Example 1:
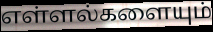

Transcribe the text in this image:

எள்ளல்களையும்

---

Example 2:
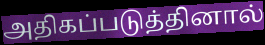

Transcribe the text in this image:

அதிகப்படுத்தினால்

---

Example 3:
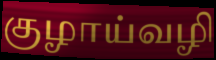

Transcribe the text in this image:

குழாய்வழி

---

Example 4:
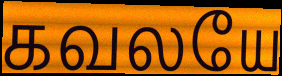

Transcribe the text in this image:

கவலயே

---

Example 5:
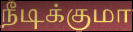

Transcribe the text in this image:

நீடிக்குமா